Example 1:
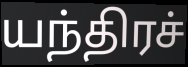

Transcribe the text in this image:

யந்திரச்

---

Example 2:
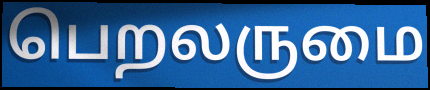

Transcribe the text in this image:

பெறலருமை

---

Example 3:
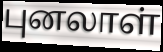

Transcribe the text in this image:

புனலாள்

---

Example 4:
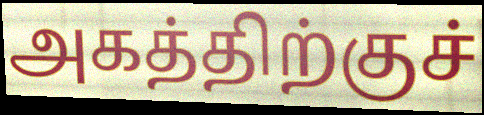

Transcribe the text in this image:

அகத்திற்குச்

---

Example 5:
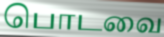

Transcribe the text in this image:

பொடவை